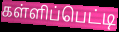
கள்ளிப்பெட்டி